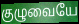
குழுவையே